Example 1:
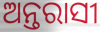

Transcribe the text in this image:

ଅନ୍ତରାସୀ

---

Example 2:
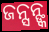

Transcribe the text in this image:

ଜନ୍ସନ୍ଙ୍କ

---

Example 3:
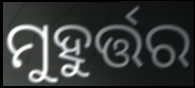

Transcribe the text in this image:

ମୁହୁର୍ତ୍ତର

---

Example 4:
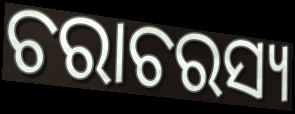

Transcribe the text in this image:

ଚରାଚରସ୍ୟ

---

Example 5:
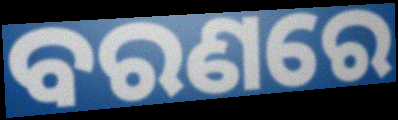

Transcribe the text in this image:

ବରଣରେ